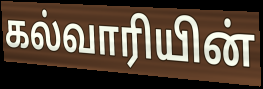
கல்வாரியின்